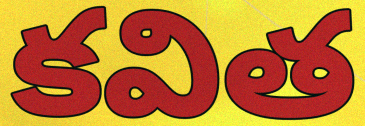
కవిత